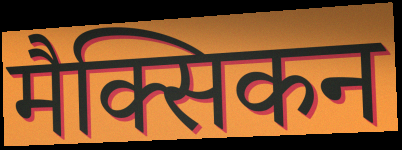
मैक्सिकन